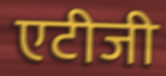
एटीजी